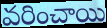
వరించాయి